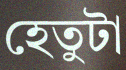
হেতুটা